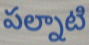
పల్నాటి